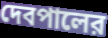
দেবপালের